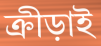
ক্রীড়াই